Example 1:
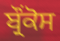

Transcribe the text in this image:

ਬ੍ਰੌਂਕੋਸ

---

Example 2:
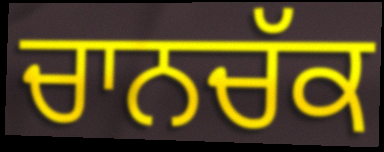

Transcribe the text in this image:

ਚਾਨਚੱਕ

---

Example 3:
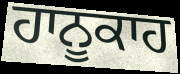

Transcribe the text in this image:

ਹਾਨੂਕਾਹ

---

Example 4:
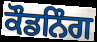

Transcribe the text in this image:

ਕੌਡਨਿੰਗ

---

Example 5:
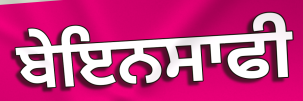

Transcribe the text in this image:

ਬੇਇਨਸਾਫੀ